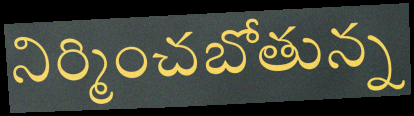
నిర్మించబోతున్న